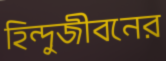
হিন্দুজীবনের